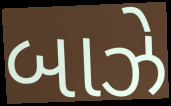
બાઝે